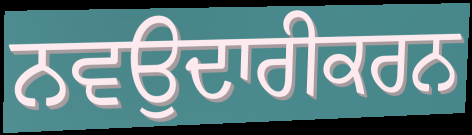
ਨਵਉਦਾਰੀਕਰਨ